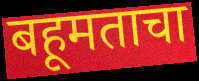
बहूमताचा